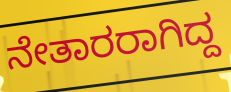
ನೇತಾರರಾಗಿದ್ದ